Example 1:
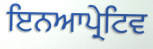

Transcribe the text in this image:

ਇਨਆਪ੍ਰੇਟਿਵ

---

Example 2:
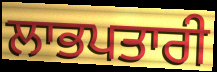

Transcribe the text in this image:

ਲਾਭਪਤਾਰੀ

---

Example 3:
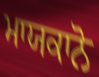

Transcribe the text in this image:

ਮਾਯਕਾਨੋ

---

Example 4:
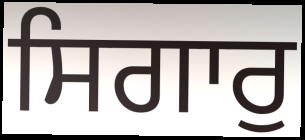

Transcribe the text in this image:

ਸਿਗਾਰੁ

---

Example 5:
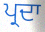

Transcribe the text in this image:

ਪ੍ਰਦਾ